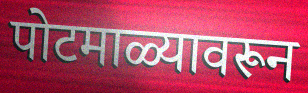
पोटमाळ्यावरून